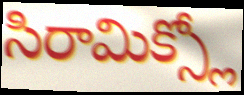
సిరామిక్స్లో